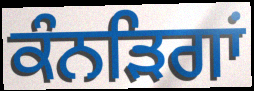
ਕੰਨੜਿਗਾਂ